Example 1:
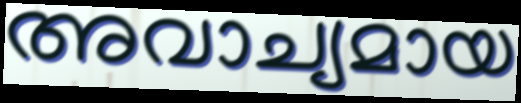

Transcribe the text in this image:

അവാച്യമായ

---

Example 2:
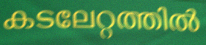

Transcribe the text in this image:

കടലേറ്റത്തിൽ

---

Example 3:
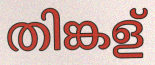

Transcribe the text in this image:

തിങ്കള്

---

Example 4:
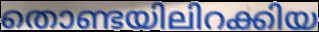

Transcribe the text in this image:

തൊണ്ടയിലിറക്കിയ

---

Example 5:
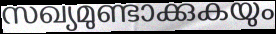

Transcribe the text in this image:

സഖ്യമുണ്ടാക്കുകയും